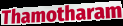
Thamotharam